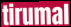
tirumal